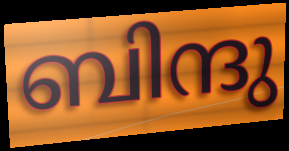
ബിന്ദു